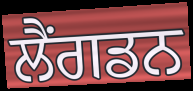
ਲੈਂਗਡਨ